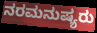
ನರಮನುಷ್ಯರು